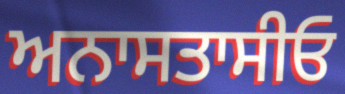
ਅਨਾਸਤਾਸੀਓ